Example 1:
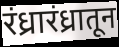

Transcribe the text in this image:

रंध्रारंध्रातून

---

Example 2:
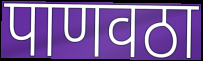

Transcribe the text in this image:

पाणवठा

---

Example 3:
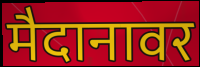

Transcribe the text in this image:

मैदानावर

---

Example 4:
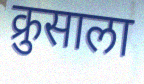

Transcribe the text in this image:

क्रुसाला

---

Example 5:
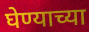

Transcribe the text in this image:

घेण्याच्या